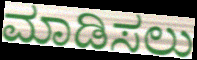
ಮಾಡಿಸಲು